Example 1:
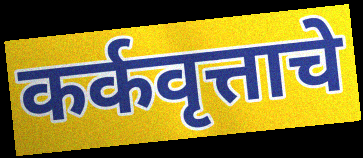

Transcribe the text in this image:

कर्कवृत्ताचे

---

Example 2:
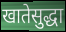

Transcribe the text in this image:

खातेसुद्धा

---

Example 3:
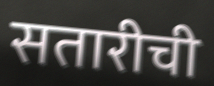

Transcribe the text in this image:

सतारीची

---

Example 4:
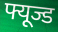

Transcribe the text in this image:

फ्यूज्ड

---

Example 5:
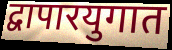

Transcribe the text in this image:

द्वापारयुगात